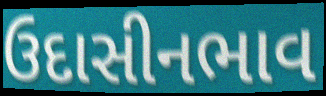
ઉદાસીનભાવ